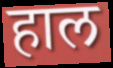
हाल